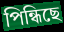
পিন্ধিছে